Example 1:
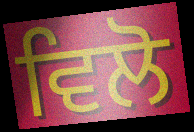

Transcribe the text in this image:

ਵਿਲੋ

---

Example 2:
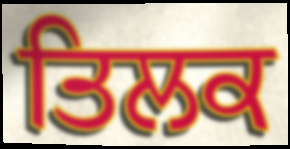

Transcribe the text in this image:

ਤਿਲਕ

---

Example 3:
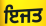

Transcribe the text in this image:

ਇਜਤ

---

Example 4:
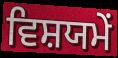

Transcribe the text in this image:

ਵਿਸ਼ਯਮੇਂ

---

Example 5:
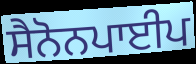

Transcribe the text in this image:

ਸੈਨੋਨਪਾਈਪ